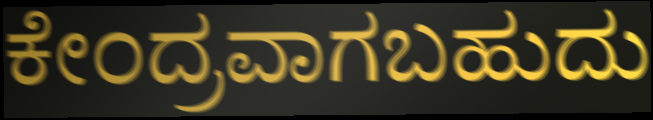
ಕೇಂದ್ರವಾಗಬಹುದು